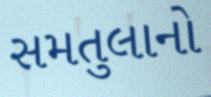
સમતુલાનો